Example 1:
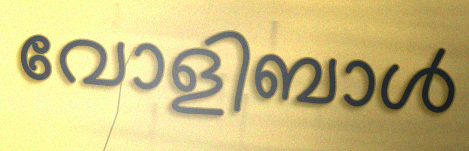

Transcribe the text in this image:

വോളിബാൾ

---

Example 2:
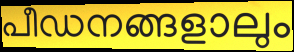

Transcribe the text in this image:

പീഡനങ്ങളാലും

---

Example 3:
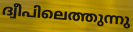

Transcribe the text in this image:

ദ്വീപിലെത്തുന്നു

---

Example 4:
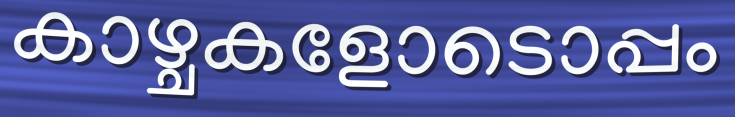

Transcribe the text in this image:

കാഴ്ചകളോടൊപ്പം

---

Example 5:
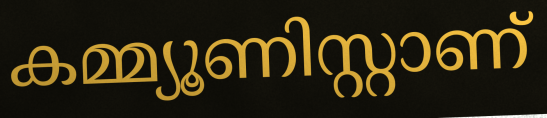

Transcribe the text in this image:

കമ്മ്യൂണിസ്റ്റാണ്